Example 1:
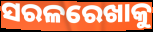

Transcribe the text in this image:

ସରଳରେଖାକୁ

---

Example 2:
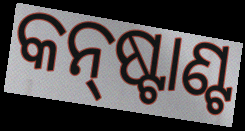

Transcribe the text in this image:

କନ୍‌ଷ୍ଟାଣ୍ଟ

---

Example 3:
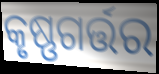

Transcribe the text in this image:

କୃଷ୍ଣଗର୍ତ୍ତର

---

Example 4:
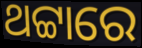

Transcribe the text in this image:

ଥଟ୍ଟାରେ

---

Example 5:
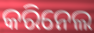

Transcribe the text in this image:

କରିନେଲ